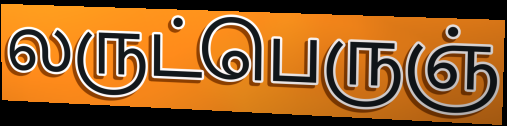
லருட்பெருஞ்